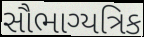
સૌભાગ્યત્રિક